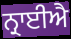
ਨ੍ਰਾਈਐ